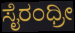
ಸೈರಂಧ್ರೀ